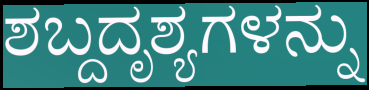
ಶಬ್ದದೃಶ್ಯಗಳನ್ನು